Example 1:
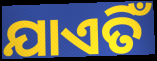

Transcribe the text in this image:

ଯାଏତିଁ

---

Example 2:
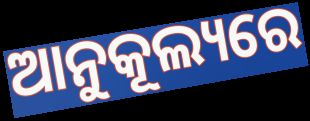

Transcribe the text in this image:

ଆନୁକୂଲ୍ୟରେ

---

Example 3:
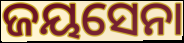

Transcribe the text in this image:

ଜୟସେନା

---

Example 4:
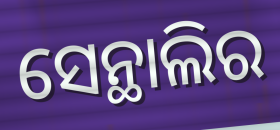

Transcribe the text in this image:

ସେନ୍ଥାଲିର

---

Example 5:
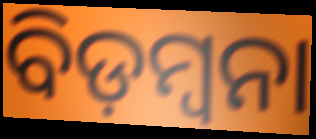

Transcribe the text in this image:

ବିଡ଼ମ୍ୱନା